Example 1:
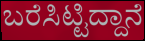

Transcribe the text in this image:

ಬರೆಸಿಟ್ಟಿದ್ದಾನೆ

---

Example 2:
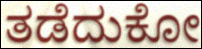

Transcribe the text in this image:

ತಡೆದುಕೋ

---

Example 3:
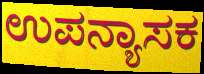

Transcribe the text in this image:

ಉಪನ್ಯಾಸಕ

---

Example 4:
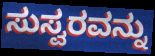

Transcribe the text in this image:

ಸುಸ್ವರವನ್ನು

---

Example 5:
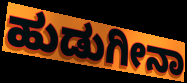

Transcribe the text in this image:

ಹುಡುಗೀನಾ